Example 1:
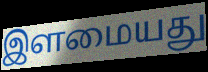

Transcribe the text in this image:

இளமையது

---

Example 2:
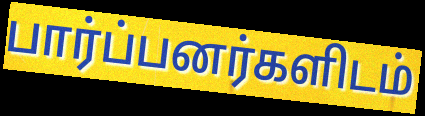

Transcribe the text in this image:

பார்ப்பனர்களிடம்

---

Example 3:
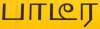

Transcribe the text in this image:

பாடீர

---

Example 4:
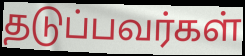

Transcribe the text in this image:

தடுப்பவர்கள்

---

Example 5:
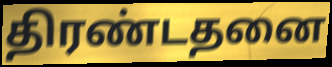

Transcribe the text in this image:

திரண்டதனை